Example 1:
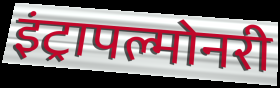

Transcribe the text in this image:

इंट्रापल्मोनरी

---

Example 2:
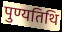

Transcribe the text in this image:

पुण्यतिथि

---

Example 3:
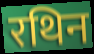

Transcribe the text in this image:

रथिन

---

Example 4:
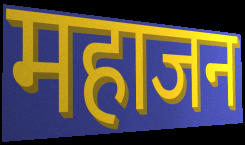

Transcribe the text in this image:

महाजन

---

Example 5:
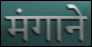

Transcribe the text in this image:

मंगाने